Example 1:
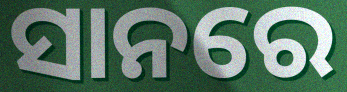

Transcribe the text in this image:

ସାନରେ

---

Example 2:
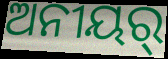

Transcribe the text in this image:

ଅନୀୟର୍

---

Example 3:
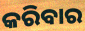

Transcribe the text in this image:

କରିବାର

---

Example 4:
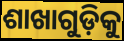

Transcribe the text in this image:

ଶାଖାଗୁଡ଼ିକୁ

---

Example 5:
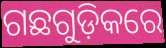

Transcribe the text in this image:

ଗଛଗୁଡ଼ିକରେ